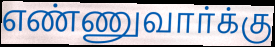
எண்ணுவார்க்கு